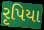
રૃપિયા